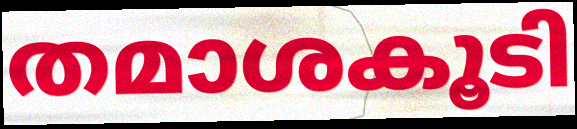
തമാശകൂടി